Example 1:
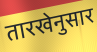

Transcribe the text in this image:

तारखेनुसार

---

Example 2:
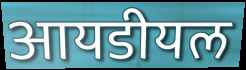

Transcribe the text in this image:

आयडीयल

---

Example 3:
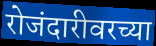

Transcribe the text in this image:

रोजंदारीवरच्या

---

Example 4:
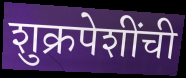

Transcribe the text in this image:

शुक्रपेशींची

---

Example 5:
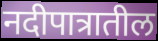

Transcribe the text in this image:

नदीपात्रातील